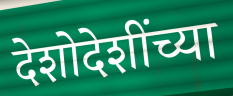
देशोदेशींच्या